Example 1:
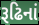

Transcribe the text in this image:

રૂઢિનાં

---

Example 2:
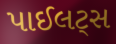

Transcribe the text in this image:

પાઈલટ્સ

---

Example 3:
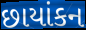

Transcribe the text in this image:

છાયાંકન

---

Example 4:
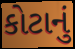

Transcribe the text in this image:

કોટાનું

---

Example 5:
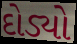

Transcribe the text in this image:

દોડ્યો